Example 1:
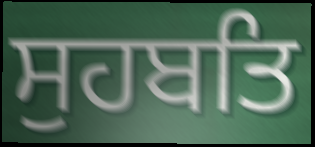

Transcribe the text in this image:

ਸੁਹਬਤਿ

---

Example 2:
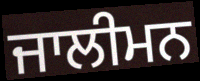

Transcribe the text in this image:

ਜਾਲੀਮਨ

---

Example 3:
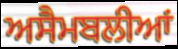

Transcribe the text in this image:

ਅਸੈਮਬਲੀਆਂ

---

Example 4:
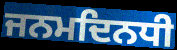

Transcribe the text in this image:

ਜਨਮਦਿਨਧੀ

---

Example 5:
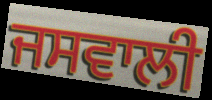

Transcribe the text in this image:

ਜਸਵਾਲੀ